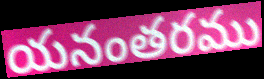
యనంతరము